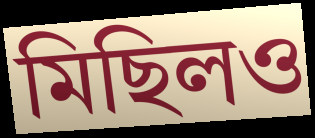
মিছিলও